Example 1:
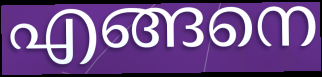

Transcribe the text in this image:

എങ്ങനെ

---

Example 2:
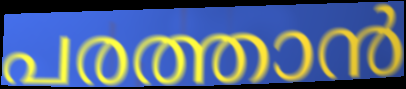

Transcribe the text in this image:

പരത്താൻ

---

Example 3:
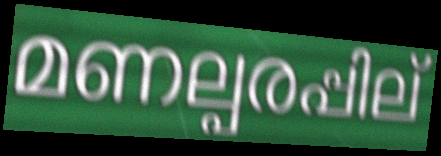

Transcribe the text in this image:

മണല്പരപ്പില്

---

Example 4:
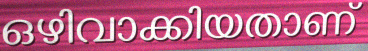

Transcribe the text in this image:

ഒഴിവാക്കിയതാണ്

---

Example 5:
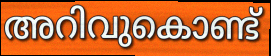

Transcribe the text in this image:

അറിവുകൊണ്ട്